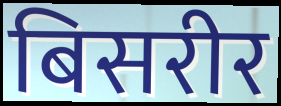
बिसरीर